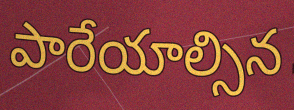
పారేయాల్సిన